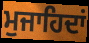
ਮੁਜਾਹਿਦਾਂ